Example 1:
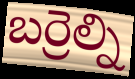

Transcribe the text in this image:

బర్రెల్ని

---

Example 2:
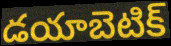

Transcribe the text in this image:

డయాబెటిక్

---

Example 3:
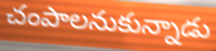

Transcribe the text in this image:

చంపాలనుకున్నాడు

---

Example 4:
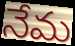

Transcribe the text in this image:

నేమ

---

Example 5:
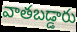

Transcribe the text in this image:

వాతబడ్డారు